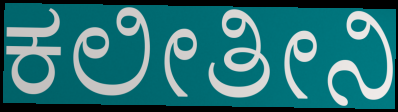
ಕಲೀತೀನಿ